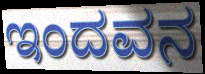
ಇಂದವನ